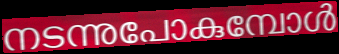
നടന്നുപോകുമ്പോൾ